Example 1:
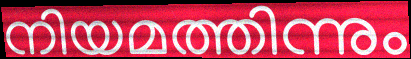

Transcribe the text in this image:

നിയമത്തിന്നും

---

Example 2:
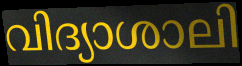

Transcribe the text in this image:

വിദ്യാശാലി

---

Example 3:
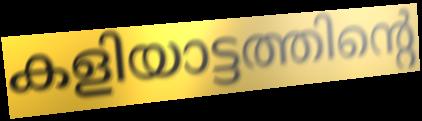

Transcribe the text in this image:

കളിയാട്ടത്തിന്റെ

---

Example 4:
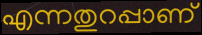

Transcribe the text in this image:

എന്നതുറപ്പാണ്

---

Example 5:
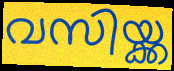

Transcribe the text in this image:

വസിയ്ക്ക